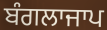
ਬੰਗਲਾਜਾਪ